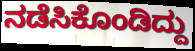
ನಡೆಸಿಕೊಂಡಿದ್ದು